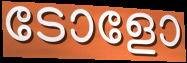
ടോളോ